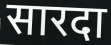
सारदा